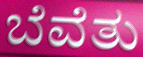
ಬೆವೆತು